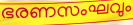
ഭരണസംഘവും